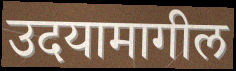
उदयामागील